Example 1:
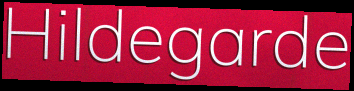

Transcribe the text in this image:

Hildegarde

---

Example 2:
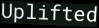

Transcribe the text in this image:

Uplifted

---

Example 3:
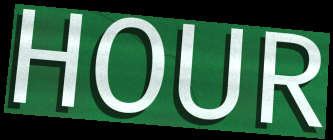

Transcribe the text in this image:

HOUR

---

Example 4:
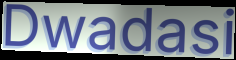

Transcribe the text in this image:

Dwadasi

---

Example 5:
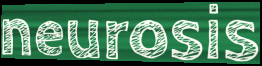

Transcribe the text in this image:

neurosis